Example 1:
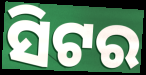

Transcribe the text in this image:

ସିଟର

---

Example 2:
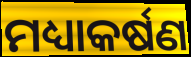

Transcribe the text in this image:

ମଧ୍ୟାକର୍ଷଣ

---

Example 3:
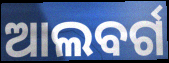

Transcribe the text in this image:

ଆଲବର୍ଗ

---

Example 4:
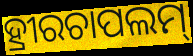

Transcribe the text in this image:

ହ୍ରୀରଚାପଲମ୍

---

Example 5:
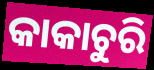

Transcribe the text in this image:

କାକାଚୁରି